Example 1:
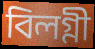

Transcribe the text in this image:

বিলগ্নী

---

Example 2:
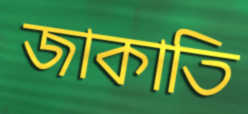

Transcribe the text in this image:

জাকাতি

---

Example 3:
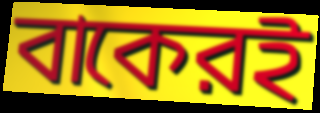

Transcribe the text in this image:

বাকেরই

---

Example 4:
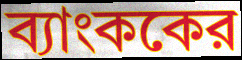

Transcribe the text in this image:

ব্যাংককের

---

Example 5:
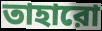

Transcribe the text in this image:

তাহারো